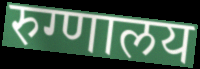
रुग्णालय